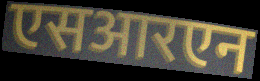
एसआरएन